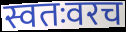
स्वतःवरच